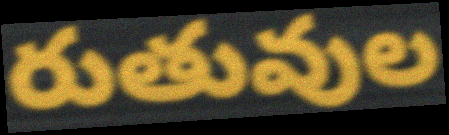
రుతువుల